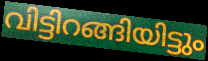
വിട്ടിറങ്ങിയിട്ടും